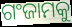
ଗଂଜାମକୁ